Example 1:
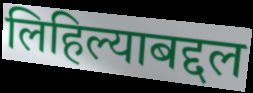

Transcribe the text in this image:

लिहिल्याबद्दल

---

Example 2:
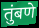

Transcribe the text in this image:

तुंबणे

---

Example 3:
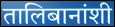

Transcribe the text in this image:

तालिबानांशी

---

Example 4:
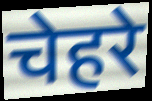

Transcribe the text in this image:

चेहरे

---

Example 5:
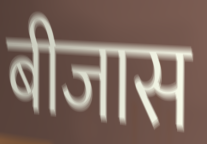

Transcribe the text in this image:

बीजास